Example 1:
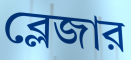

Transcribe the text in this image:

ব্লেজার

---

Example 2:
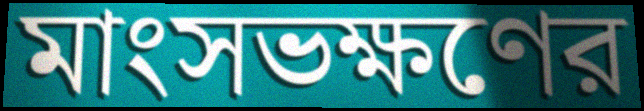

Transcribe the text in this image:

মাংসভক্ষণের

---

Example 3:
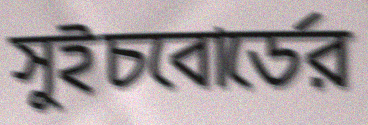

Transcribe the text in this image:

সুইচবোর্ডের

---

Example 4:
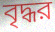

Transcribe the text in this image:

বৃদ্ধর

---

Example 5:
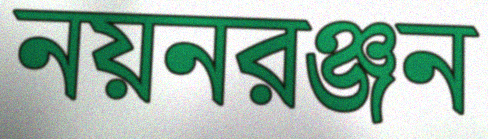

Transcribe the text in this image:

নয়নরঞ্জন